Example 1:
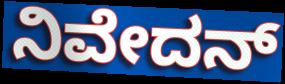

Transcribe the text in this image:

ನಿವೇದನ್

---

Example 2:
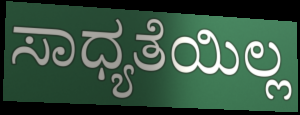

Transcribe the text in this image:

ಸಾಧ್ಯತೆಯಿಲ್ಲ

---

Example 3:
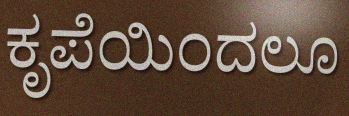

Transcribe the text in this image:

ಕೃಪೆಯಿಂದಲೂ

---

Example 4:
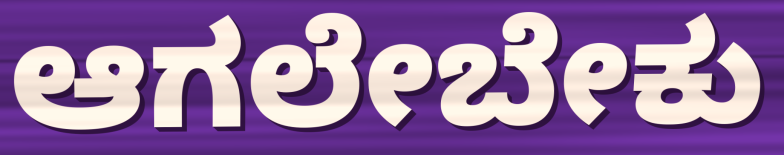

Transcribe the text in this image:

ಆಗಲೇಬೇಕು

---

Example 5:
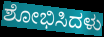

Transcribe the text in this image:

ಶೋಭಿಸಿದಳು